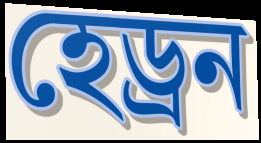
হেড্ৰন